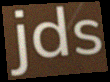
jds